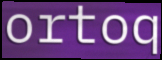
ortoq